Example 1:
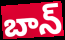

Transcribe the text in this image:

బాన్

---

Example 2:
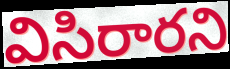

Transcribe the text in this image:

విసిరారని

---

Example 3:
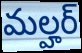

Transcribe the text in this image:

మల్హర్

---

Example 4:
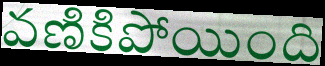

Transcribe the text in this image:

వణికిపోయింది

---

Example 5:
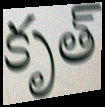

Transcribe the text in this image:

కృత్